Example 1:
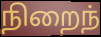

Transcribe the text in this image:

நிறைந்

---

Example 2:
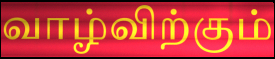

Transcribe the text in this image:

வாழ்விற்கும்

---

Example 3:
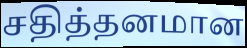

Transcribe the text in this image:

சதித்தனமான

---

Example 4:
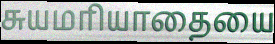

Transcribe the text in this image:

சுயமரியாதையை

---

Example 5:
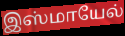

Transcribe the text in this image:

இஸ்மாயேல்